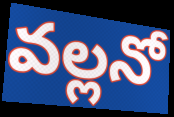
వల్లనో